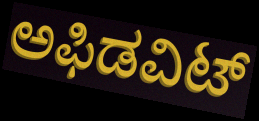
ಅಫಿಡವಿಟ್